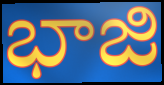
భాజి